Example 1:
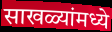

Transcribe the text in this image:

साखळ्यांमध्ये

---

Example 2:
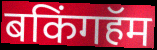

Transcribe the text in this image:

बकिंगहॅम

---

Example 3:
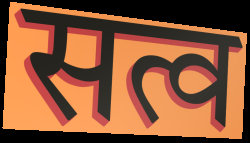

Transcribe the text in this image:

सत्व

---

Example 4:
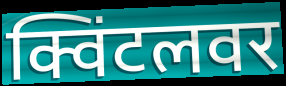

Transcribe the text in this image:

क्विंटलवर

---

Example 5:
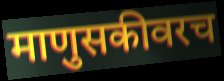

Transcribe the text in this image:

माणुसकीवरच